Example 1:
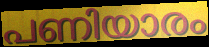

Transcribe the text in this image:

പണിയാരം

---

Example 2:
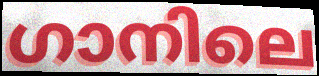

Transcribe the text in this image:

ഗാനിലെ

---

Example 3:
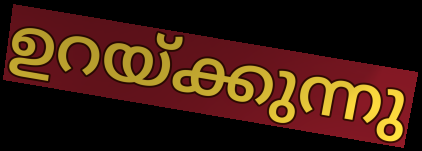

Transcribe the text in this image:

ഉറയ്ക്കുന്നു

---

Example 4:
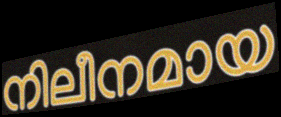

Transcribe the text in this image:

നിലീനമായ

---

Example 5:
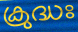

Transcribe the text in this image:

ക്രുദ്ധഃ